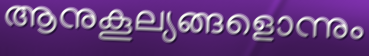
ആനുകൂല്യങ്ങളൊന്നും